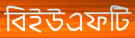
বিইউএফটি